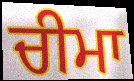
ਚੀਮਾ